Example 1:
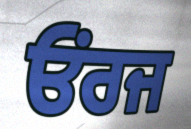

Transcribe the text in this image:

ਓਂਰਜ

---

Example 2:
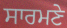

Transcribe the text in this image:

ਸਾਰਮਣੇ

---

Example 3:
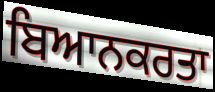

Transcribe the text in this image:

ਬਿਆਨਕਰਤਾ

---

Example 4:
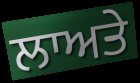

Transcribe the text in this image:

ਲਾਅਤੇ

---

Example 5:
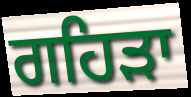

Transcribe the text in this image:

ਗਹਿੜਾ